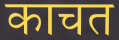
काचत